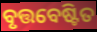
ବୃତ୍ତବେଷ୍ଟିତ